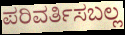
ಪರಿವರ್ತಿಸಬಲ್ಲ